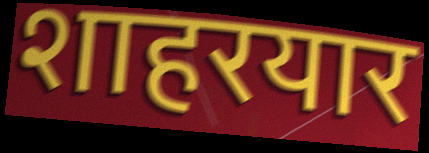
शाहरयार